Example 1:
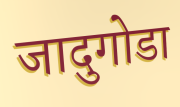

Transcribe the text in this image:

जादुगोडा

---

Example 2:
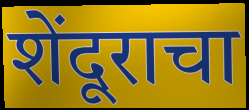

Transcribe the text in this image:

शेंदूराचा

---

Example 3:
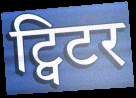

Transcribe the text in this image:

ट्विटर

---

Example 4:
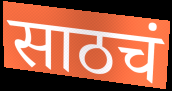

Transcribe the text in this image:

साठचं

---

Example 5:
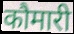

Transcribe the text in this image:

कौमारी